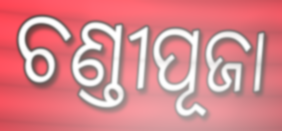
ଚଣ୍ଡୀପୂଜା